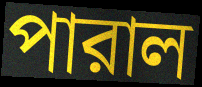
পারাল